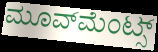
ಮೂವ್‍ಮೆಂಟ್ಸ್